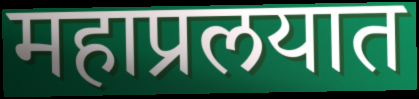
महाप्रलयात